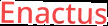
Enactus